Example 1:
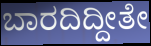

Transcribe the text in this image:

ಬಾರದಿದ್ದೀತೇ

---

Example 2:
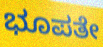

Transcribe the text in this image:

ಭೂಪತೇ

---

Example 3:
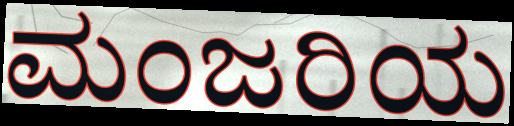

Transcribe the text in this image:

ಮಂಜರಿಯ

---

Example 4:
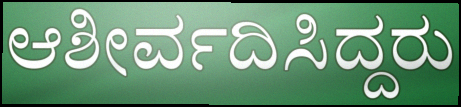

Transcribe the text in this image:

ಆಶೀರ್ವದಿಸಿದ್ದರು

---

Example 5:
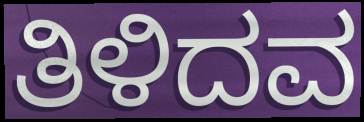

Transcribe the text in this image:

ತಿಳಿದವ